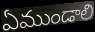
ఏముండాలి